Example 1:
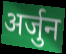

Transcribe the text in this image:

अर्जुन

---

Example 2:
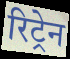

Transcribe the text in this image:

रिट्रेन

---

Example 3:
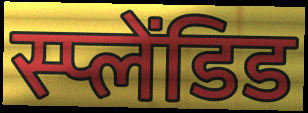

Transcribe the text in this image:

स्प्लेंडिड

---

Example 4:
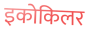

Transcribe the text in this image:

इकोकिलर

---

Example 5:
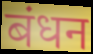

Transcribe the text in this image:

बंधन